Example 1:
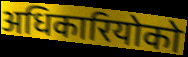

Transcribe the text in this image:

अधिकारियोको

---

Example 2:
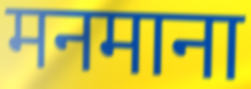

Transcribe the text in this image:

मनमाना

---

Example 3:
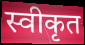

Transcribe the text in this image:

स्‍वीकृत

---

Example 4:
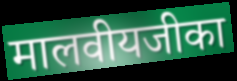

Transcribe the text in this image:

मालवीयजीका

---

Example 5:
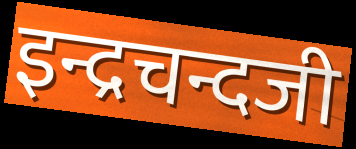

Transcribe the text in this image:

इन्द्रचन्दजी